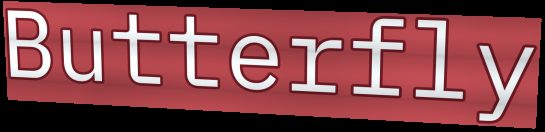
Butterfly